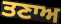
ਤਣਾਅ